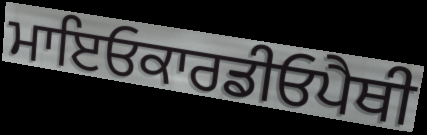
ਮਾਇਓਕਾਰਡੀਓਪੈਥੀ